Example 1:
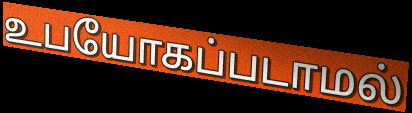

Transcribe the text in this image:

உபயோகப்படாமல்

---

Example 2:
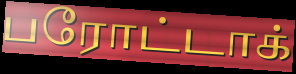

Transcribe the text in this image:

பரோட்டாக்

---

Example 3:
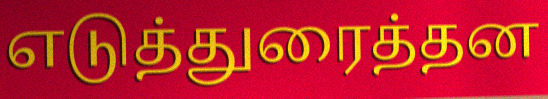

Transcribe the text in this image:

எடுத்துரைத்தன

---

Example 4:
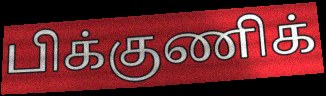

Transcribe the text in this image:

பிக்குணிக்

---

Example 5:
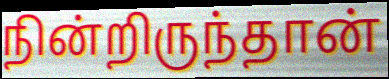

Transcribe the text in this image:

நின்றிருந்தான்